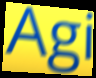
Agi